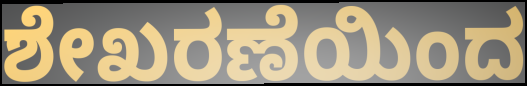
ಶೇಖರಣೆಯಿಂದ